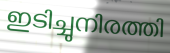
ഇടിച്ചുനിരത്തി